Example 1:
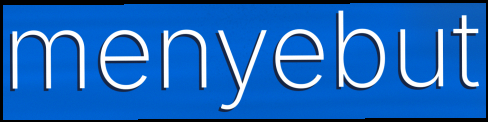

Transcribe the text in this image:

menyebut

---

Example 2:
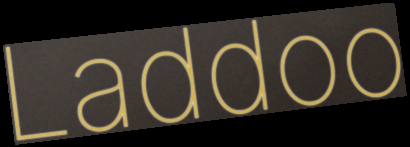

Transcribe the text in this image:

Laddoo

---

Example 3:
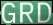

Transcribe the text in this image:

GRD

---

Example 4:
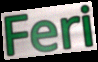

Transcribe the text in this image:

Feri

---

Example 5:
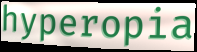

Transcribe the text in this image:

hyperopia